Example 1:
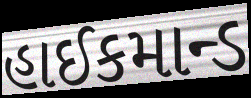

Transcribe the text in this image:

હાઈકમાન્ડ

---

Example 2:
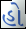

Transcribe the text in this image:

હો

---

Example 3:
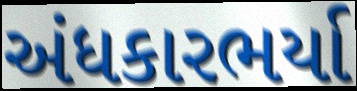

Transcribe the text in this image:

અંધકારભર્યા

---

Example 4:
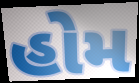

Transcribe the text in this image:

હોમ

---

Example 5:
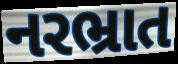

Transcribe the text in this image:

નરભ્રાત